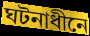
ঘটনাধীনে